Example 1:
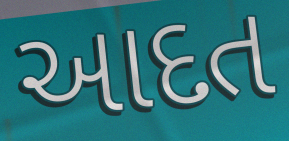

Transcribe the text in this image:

આદત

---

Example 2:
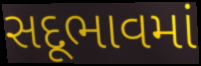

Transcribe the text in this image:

સદૂભાવમાં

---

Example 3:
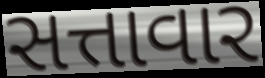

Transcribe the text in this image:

સત્તાવાર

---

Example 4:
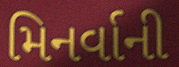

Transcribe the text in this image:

મિનર્વાની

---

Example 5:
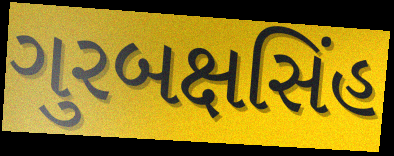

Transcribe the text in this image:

ગુરબક્ષસિંહ